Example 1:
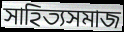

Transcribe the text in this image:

সাহিত্যসমাজ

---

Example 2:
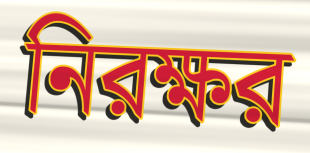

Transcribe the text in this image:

নিরক্ষর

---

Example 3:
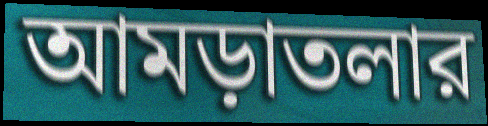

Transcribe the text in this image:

আমড়াতলার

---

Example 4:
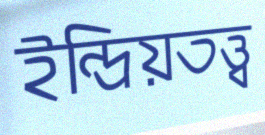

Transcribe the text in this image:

ইন্দ্রিয়তত্ত্ব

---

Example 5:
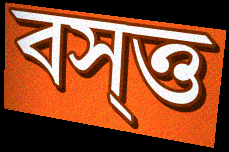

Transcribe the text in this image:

বস্ত্ত